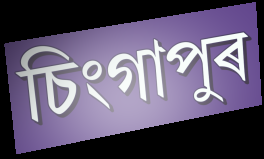
চিংগাপুৰ